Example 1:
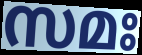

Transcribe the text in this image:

സമഃ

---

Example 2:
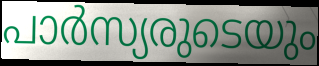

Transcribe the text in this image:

പാർസ്യരുടെയും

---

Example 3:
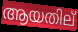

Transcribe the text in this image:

ആയതില്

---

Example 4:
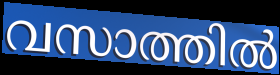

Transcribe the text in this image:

വസാത്തിൽ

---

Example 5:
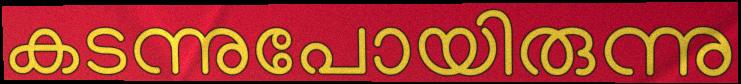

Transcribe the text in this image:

കടന്നുപോയിരുന്നു